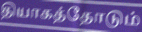
தியாகத்தோடும்